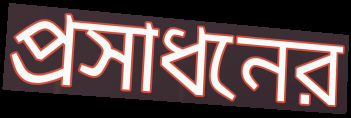
প্রসাধনের